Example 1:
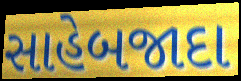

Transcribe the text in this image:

સાહેબજાદા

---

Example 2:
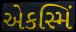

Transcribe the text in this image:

એકસ્મિં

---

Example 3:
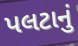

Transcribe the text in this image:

પલટાનું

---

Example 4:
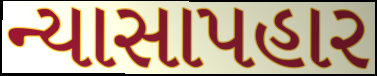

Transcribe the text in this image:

ન્યાસાપહાર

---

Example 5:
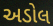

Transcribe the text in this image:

અડોલ